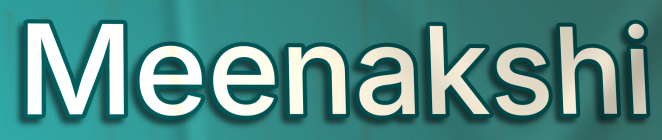
Meenakshi